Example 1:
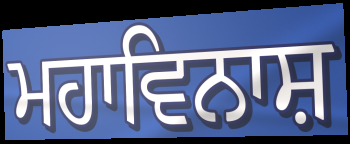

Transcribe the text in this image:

ਮਹਾਵਿਨਾਸ਼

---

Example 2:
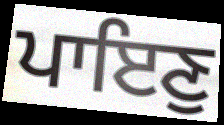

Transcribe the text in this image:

ਪਾਇਣੁ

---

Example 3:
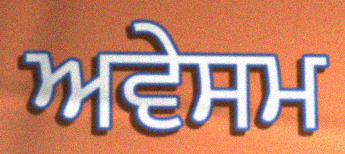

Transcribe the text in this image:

ਅਵੇਸਮ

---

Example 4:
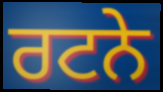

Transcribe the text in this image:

ਰਟਨੇ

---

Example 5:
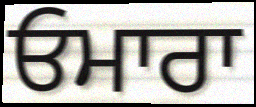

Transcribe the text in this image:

ਓਮਾਰਾ